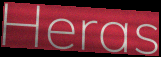
Heras